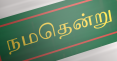
நமதென்று